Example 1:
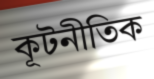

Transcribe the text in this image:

কূটনীতিক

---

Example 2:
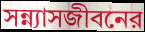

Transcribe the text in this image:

সন্ন্যাসজীবনের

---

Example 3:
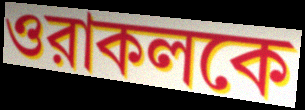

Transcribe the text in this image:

ওরাকলকে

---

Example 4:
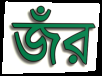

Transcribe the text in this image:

জঁর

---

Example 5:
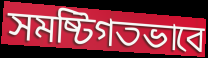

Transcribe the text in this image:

সমষ্টিগতভাবে